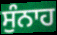
ਸੁੰਨਾਹ